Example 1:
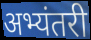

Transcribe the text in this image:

अभ्यंतरी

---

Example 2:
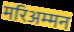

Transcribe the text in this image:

मरिअम्मन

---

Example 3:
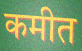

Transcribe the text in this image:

कमीत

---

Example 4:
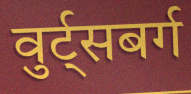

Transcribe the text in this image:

वुर्ट्सबर्ग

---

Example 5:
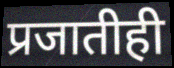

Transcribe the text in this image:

प्रजातीही